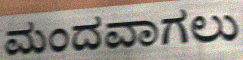
ಮಂದವಾಗಲು